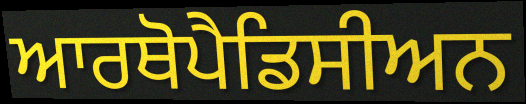
ਆਰਥੋਪੈਡਿਸੀਅਨ